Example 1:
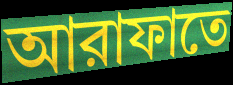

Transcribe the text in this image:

আরাফাতে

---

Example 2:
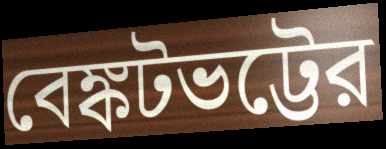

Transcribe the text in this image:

বেঙ্কটভট্টের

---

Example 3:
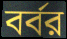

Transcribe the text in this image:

বর্বর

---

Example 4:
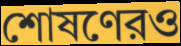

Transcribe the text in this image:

শোষণেরও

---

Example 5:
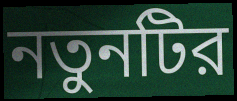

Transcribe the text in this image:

নতুনটির